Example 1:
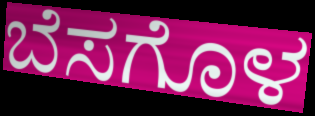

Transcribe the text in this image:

ಬೆಸಗೊಳ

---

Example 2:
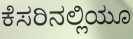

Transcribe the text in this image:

ಕೆಸರಿನಲ್ಲಿಯೂ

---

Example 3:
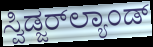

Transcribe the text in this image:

ಸ್ವಿಡ್ಜರ್‌ಲ್ಯಾಂಡ್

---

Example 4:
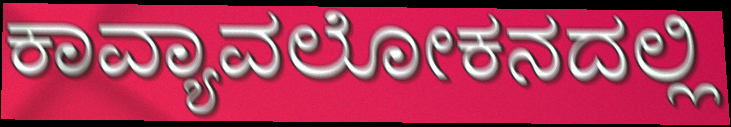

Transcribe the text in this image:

ಕಾವ್ಯಾವಲೋಕನದಲ್ಲಿ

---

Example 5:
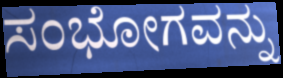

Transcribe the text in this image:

ಸಂಭೋಗವನ್ನು